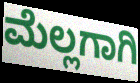
ಮೆಲ್ಲಗಾಗಿ